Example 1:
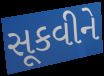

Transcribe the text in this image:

સૂકવીને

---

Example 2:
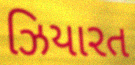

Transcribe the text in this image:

ઝિયારત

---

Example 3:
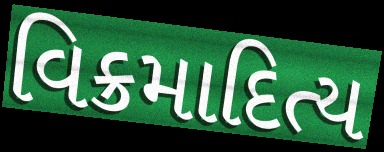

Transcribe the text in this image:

વિક્રમાદિત્‍ય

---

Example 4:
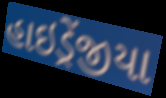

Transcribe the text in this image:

હાઇડ્રેંજીયા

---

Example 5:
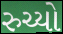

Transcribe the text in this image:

રુચ્યો